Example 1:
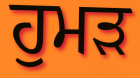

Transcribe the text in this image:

ਹੁਮੜ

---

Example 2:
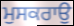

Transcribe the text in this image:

ਮੁਸਕਰਾਉ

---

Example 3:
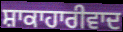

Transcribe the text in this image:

ਸ਼ਾਕਾਹਾਰੀਵਾਦ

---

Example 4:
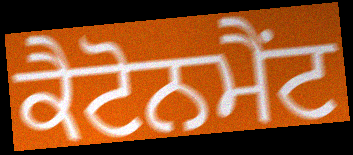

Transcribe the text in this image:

ਕੈਟੋਨਮੈਂਟ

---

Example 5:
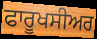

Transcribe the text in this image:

ਫਾਰੂਖਸੀਅਰ